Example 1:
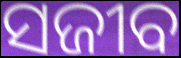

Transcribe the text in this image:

ସଜୀବ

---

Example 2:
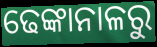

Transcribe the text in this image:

ଢେଙ୍କାନାଳରୁ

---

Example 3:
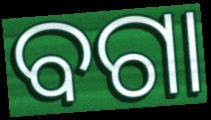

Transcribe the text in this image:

ବଗା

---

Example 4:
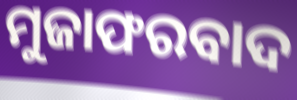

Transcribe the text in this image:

ମୁଜାଫରବାଦ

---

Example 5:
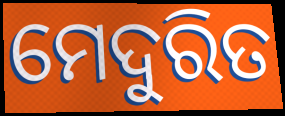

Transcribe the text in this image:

ମେଦୁରିତ